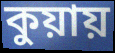
কুয়ায়